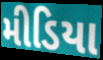
મીડિયા